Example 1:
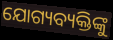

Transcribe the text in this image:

ଯୋଗ୍ୟବ୍ୟକ୍ତିଙ୍କୁ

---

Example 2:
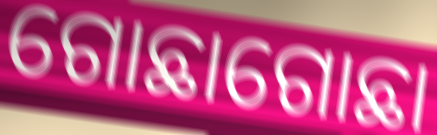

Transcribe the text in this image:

ଗୋଛାଗୋଛା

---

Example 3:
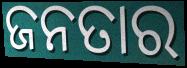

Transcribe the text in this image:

ଜନତାର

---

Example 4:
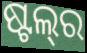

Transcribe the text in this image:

ଷ୍ଟଲ୍‌ର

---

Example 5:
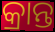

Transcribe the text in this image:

କ୍ରାନ୍ତ